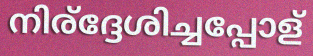
നിര്ദ്ദേശിച്ചപ്പോള്